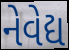
નેવેદ્ય